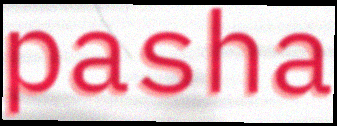
pasha